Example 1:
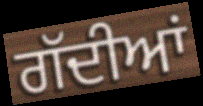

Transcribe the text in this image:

ਗੱਦੀਆਂ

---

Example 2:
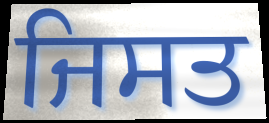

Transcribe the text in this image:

ਜਿਸਤ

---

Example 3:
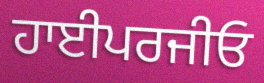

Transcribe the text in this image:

ਹਾਈਪਰਜੀਓ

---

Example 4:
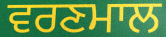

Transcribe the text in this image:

ਵਰਣਮਾਲ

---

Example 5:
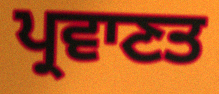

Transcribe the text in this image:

ਪ੍ਰਵਾਣਤ